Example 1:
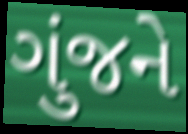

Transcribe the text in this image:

ગુંજને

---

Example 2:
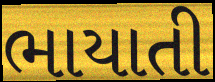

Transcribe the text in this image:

ભાયાતી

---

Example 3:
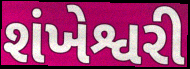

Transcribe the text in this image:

શંખેશ્વરી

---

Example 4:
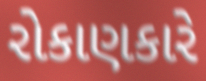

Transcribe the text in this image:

રોકાણકારે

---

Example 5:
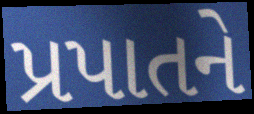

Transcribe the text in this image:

પ્રપાતને